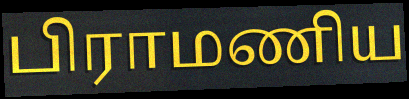
பிராமணிய